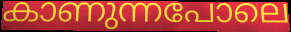
കാണുന്നപോലെ